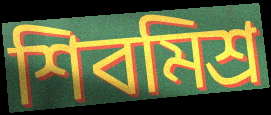
শিবমিশ্র